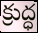
క్రుద్ధ